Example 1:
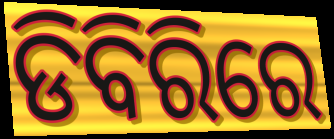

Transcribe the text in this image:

ଡିବିରିରେ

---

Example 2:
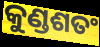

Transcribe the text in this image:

କୁଣ୍ଡଶତଂ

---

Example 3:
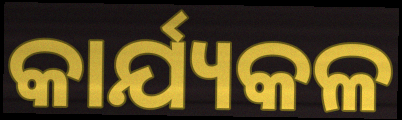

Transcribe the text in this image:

କାର୍ଯ୍ୟକଳ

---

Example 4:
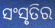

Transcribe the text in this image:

ସଂସୃତିର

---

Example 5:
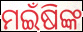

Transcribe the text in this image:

ମଇଁଷିଙ୍କ